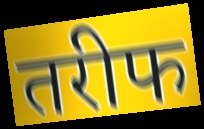
तरीफ